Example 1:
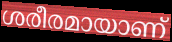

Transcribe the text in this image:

ശരീരമായാണ്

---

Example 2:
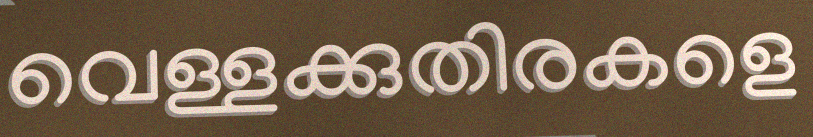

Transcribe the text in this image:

വെള്ളക്കുതിരകളെ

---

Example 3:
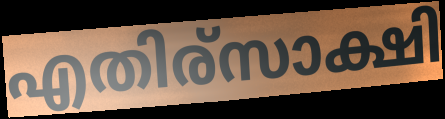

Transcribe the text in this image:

എതിര്സാക്ഷി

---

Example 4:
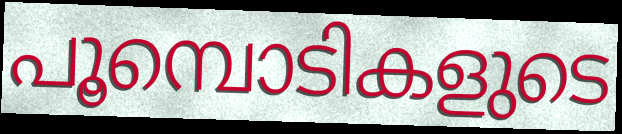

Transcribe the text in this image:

പൂമ്പൊടികളുടെ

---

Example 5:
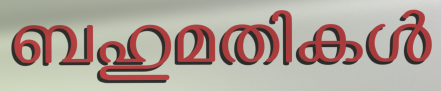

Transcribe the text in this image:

ബഹുമതികൾ